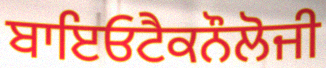
ਬਾਇਓਟੈਕਨੌਲੋਜੀ